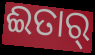
ଈତାର୍